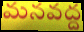
మనవద్ద